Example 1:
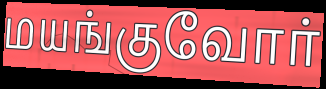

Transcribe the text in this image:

மயங்குவோர்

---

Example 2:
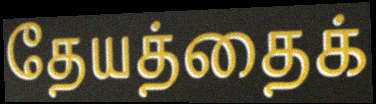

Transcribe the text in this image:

தேயத்தைக்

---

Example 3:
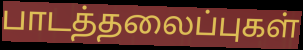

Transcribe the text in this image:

பாடத்தலைப்புகள்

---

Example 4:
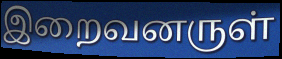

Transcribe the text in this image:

இறைவனருள்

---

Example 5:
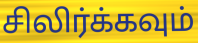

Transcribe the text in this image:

சிலிர்க்கவும்